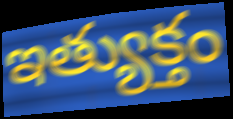
ఇత్యుక్తం